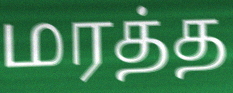
மரத்த